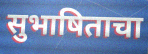
सुभाषिताचा